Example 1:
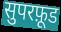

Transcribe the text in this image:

सुपरफ़ूड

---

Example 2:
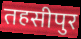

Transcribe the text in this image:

तहसीपुर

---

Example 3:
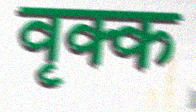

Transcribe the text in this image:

वृक्क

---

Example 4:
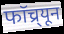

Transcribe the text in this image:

फॉच्र्यून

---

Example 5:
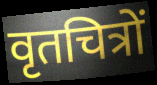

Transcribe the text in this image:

वृतचित्रों